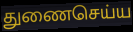
துணைசெய்ய